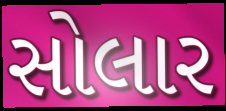
સોલાર